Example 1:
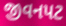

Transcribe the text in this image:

જીવનપટ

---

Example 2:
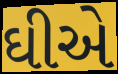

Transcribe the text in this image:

ઘીએ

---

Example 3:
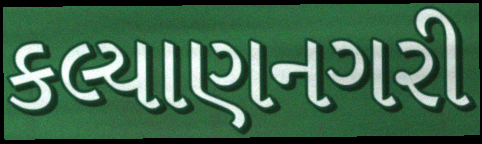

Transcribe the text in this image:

કલ્યાણનગરી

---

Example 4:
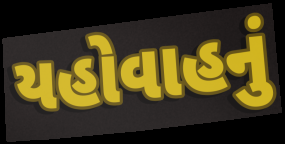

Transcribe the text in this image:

યહોવાહનું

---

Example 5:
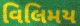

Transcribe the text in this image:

વિલિમય